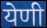
येणी